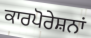
ਕਾਰਪੋਰੇਸ਼ਨਾਂ